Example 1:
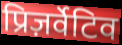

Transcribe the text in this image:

प्रिज़र्वेटिव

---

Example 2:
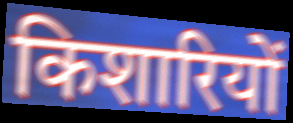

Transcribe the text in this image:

किशारियों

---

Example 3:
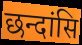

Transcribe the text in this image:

छन्दांसि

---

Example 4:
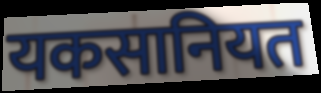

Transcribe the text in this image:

यकसानियत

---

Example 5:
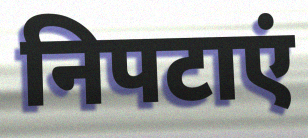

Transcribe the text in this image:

निपटाएं